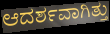
ಆದರ್ಶವಾಗಿತ್ತು